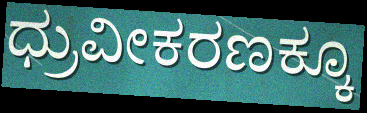
ಧ್ರುವೀಕರಣಕ್ಕೂ